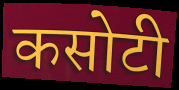
कसोटी